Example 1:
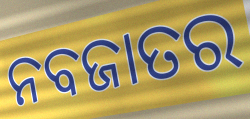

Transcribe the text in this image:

ନବଜାତର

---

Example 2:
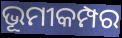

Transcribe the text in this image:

ଭୂମୀକମ୍ପର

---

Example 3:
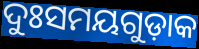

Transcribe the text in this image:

ଦୁଃସମୟଗୁଡ଼ାକ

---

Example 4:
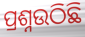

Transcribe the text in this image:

ପ୍ରଶ୍ନଉଠିଛି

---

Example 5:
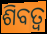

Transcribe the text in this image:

ଶିବତ୍ୱ